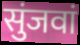
सुंजवां